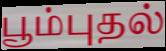
பூம்புதல்